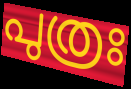
പുത്രഃ